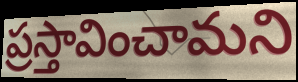
ప్రస్తావించామని